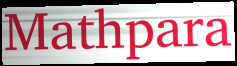
Mathpara